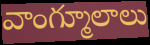
వాంగ్మూలాలు